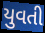
યુવતી